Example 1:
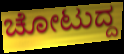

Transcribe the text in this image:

ಚೋಟುದ್ದ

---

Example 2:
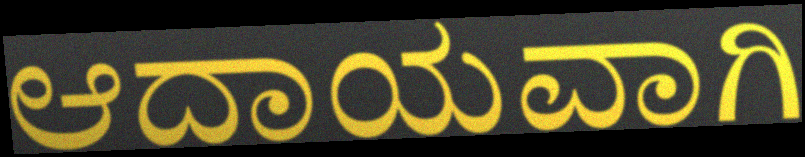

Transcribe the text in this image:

ಆದಾಯವಾಗಿ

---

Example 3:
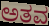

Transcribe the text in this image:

ಅತವ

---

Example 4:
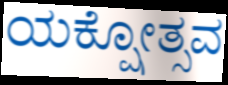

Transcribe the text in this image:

ಯಕ್ಷೋತ್ಸವ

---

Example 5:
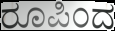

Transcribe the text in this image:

ರೂಪಿಂದ